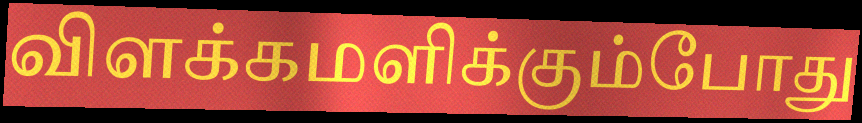
விளக்கமளிக்கும்போது